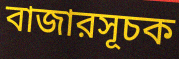
বাজারসূচক